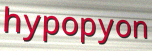
hypopyon